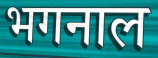
भगनाल